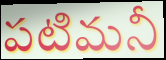
పటిమనీ